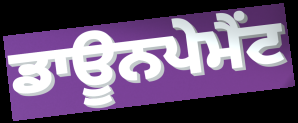
ਡਾਊਨਪੇਮੈਂਟ